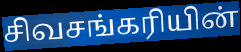
சிவசங்கரியின்